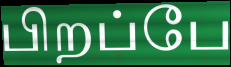
பிறப்பே